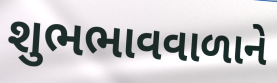
શુભભાવવાળાને